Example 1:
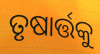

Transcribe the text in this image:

ତୃଷାର୍ତ୍ତକୁ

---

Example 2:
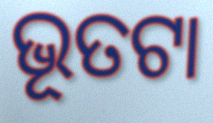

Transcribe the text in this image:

ଭୂତଟା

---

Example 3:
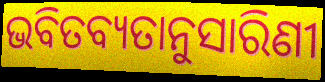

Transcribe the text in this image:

ଭବିତବ୍ୟତାନୁସାରିଣୀ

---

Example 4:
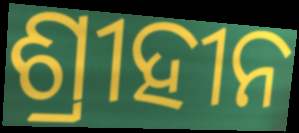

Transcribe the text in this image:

ଶ୍ରୀହୀନ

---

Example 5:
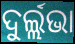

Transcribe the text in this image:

ଦୁର୍ଲ୍ଲଭା